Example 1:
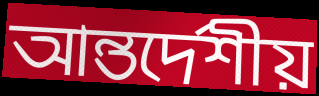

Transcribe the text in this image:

আন্তর্দেশীয়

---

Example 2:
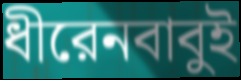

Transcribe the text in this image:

ধীরেনবাবুই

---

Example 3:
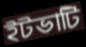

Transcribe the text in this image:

ইটভাটি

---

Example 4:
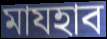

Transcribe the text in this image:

মাযহাব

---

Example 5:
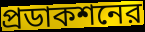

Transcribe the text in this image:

প্রডাকশনের